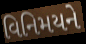
વિનિમયને